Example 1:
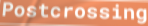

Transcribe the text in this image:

Postcrossing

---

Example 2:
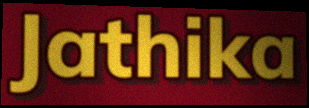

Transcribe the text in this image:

Jathika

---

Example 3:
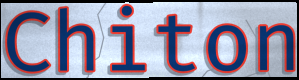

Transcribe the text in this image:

Chiton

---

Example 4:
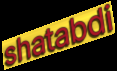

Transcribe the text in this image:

shatabdi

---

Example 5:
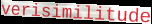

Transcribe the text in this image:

verisimilitude